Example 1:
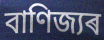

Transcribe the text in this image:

বাণিজ্যৰ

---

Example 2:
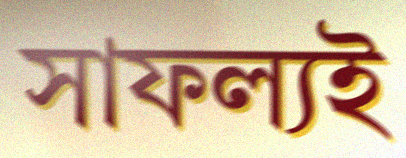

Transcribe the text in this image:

সাফল্যই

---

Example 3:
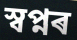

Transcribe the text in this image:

স্বপ্নৰ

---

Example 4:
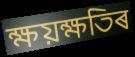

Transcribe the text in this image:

ক্ষয়ক্ষতিৰ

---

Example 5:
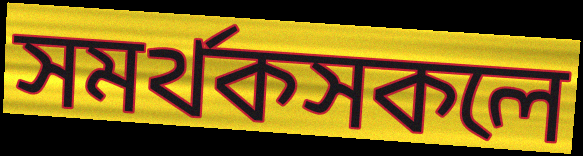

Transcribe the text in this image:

সমৰ্থকসকলে